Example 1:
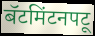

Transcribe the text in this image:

बॅटमिंटनपटू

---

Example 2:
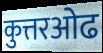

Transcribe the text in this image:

कुत्तरओढ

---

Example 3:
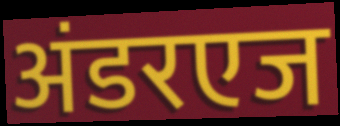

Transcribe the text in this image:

अंडरएज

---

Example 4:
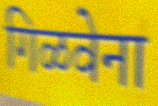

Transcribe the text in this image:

गिळवेना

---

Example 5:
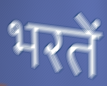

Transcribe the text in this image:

भरतें